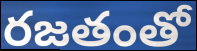
రజతంతో